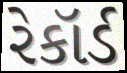
રેકૉર્ડ